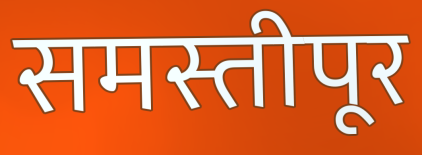
समस्तीपूर